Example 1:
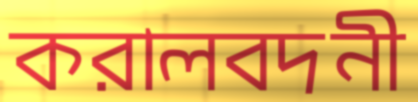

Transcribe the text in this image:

করালবদনী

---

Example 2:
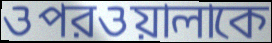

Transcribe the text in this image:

ওপরওয়ালাকে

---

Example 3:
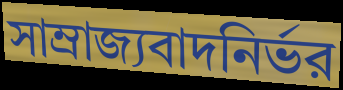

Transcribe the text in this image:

সাম্রাজ্যবাদনির্ভর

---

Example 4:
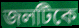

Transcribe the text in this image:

জলটিকে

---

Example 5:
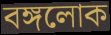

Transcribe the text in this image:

বঙ্গলোক